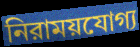
নিরাময়যোগ্য